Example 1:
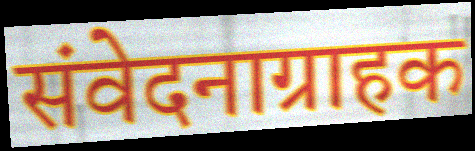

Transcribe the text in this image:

संवेदनाग्राहक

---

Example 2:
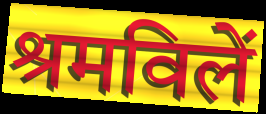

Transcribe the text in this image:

श्रमविलें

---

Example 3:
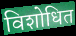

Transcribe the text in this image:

विशोधित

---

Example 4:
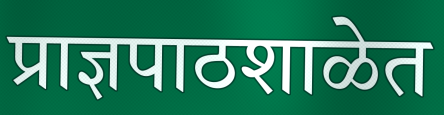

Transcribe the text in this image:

प्राज्ञपाठशाळेत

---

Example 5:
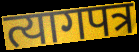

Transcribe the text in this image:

त्यागपत्र